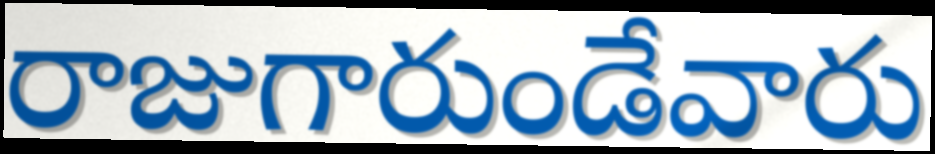
రాజుగారుండేవారు